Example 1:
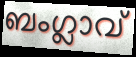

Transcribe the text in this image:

ബംഗ്ലാവ്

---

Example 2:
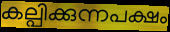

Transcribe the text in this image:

കല്പിക്കുന്നപക്ഷം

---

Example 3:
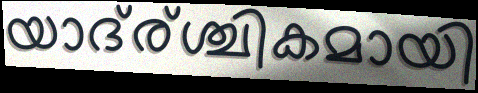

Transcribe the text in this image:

യാദ്ര്ശ്ചികമായി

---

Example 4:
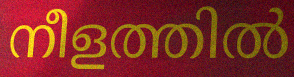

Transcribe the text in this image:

നീളത്തിൽ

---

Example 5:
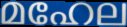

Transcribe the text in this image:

മഹേല